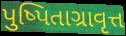
પુષ્પિતાગ્રાવૃત્ત